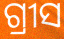
ଗ୍ରୀସ